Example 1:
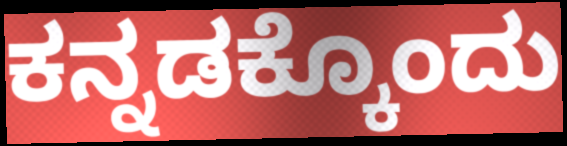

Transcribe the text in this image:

ಕನ್ನಡಕ್ಕೊಂದು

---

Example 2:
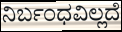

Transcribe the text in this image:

ನಿರ್ಬಂಧವಿಲ್ಲದೆ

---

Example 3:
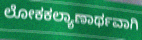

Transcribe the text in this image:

ಲೋಕಕಲ್ಯಾಣಾರ್ಥವಾಗಿ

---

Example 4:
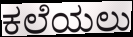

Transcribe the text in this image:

ಕಲೆಯಲು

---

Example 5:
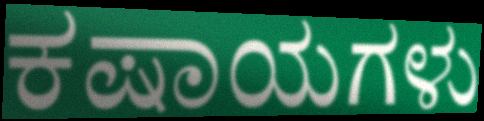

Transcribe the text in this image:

ಕಷಾಯಗಳು